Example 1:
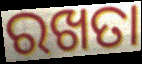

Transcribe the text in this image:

ରଖତା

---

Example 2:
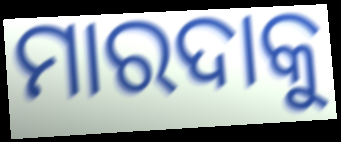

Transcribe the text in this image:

ମାରଦାକୁ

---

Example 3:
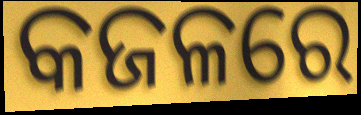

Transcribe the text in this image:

କଜଳରେ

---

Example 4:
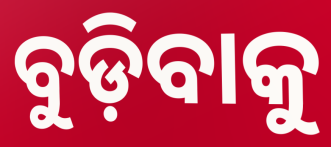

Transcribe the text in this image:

ବୁଡ଼ିବାକୁ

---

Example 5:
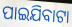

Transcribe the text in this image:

ପାଇଯିବାଟା